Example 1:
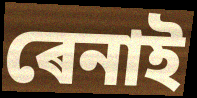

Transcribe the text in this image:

ৰেনাই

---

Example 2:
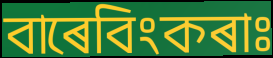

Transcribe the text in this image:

বাৰেবিংকৰাঃ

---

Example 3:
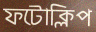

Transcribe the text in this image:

ফটোক্লিপ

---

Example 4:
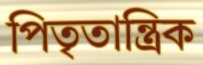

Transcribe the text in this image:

পিতৃতান্ত্ৰিক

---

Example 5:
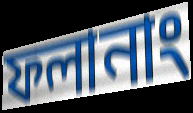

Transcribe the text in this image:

ফলানাং